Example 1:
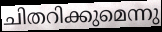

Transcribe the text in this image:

ചിതറിക്കുമെന്നു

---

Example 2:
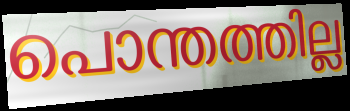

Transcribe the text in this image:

പൊന്തത്തില്ല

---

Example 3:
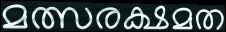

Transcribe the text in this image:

മത്സരക്ഷമത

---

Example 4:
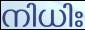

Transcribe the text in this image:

നിധിഃ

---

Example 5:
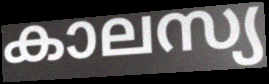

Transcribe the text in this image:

കാലസ്യ